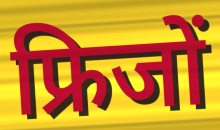
फ्रिजों